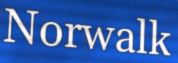
Norwalk